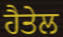
ਹੈਤੇਲ